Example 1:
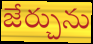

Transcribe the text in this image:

జేర్చును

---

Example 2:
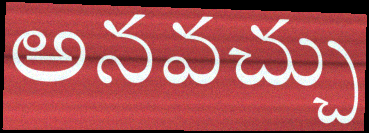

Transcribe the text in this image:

అనవచ్చు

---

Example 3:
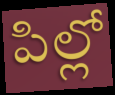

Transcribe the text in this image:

పిల్లో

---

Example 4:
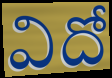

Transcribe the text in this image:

విదో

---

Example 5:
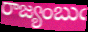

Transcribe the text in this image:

రాజ్యంబుఁ